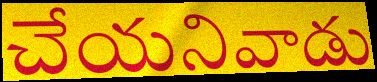
చేయనివాడు